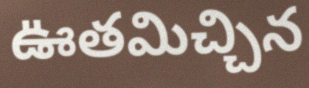
ఊతమిచ్చిన